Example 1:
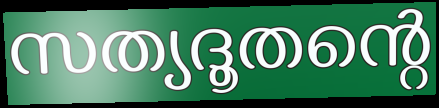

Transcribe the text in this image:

സത്യദൂതന്റെ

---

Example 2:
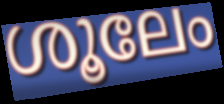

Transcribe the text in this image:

ശൂലേം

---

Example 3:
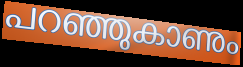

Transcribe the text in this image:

പറഞ്ഞുകാണും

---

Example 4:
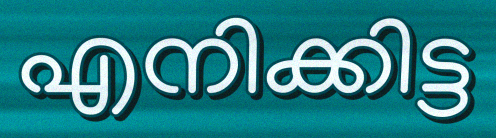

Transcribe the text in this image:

എനിക്കിട്ട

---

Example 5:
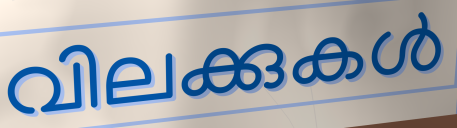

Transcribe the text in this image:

വിലക്കുകൾ